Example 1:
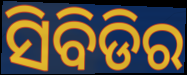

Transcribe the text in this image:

ସିବିଡିର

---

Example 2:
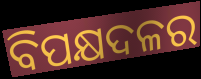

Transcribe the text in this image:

ବିପକ୍ଷଦଳର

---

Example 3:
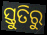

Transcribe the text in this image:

ସ୍ତୁତିରୁ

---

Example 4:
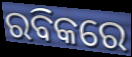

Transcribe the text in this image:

ରବିକରେ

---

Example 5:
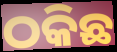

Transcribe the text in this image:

ଠକିଛ